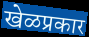
खेळप्रकार